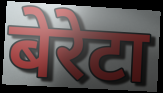
बेरेटा